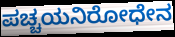
ಪಚ್ಚಯನಿರೋಧೇನ